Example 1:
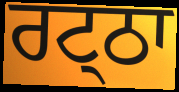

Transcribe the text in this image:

ਰਟ੍ਠਾ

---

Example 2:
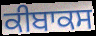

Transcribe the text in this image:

ਕੀਬਾਕਸ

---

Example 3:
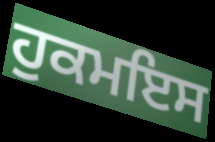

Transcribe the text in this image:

ਹੁਕਮਇਸ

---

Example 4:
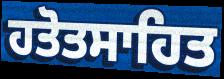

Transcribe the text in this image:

ਹਤੋਤਸਾਹਿਤ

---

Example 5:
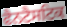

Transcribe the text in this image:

ਫੈਨਟੈਸਟਿਕ